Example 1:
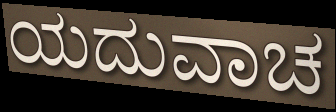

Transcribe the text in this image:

ಯದುವಾಚ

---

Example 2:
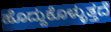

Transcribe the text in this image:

ಹೊದ್ದುಕೊಳ್ಳುತ್ತದೆ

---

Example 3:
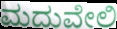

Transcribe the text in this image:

ಮದುವೇಲಿ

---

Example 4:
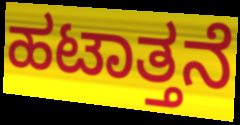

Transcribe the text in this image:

ಹಟಾತ್ತನೆ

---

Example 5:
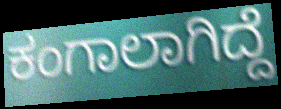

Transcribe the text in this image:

ಕಂಗಾಲಾಗಿದ್ದೆ